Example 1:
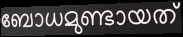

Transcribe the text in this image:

ബോധമുണ്ടായത്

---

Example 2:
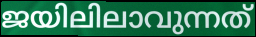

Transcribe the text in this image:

ജയിലിലാവുന്നത്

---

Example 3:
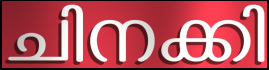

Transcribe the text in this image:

ചിനക്കി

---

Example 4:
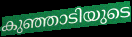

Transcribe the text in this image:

കുഞ്ഞാടിയുടെ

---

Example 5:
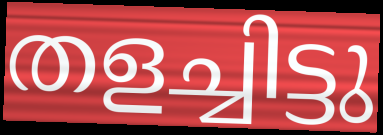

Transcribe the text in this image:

തളച്ചിട്ടു